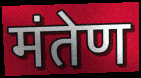
मंतेण